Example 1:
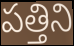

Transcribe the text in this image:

పత్తిని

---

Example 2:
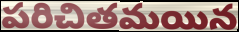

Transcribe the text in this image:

పరిచితమయిన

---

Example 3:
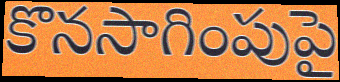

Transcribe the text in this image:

కొనసాగింపుపై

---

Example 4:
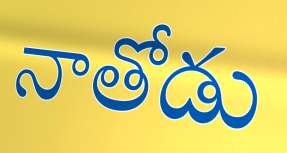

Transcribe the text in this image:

నాతోడు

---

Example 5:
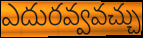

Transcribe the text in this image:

ఎదురవ్వవచ్చు